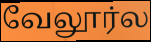
வேலூர்ல